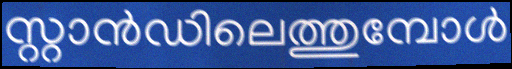
സ്റ്റാൻഡിലെത്തുമ്പോൾ